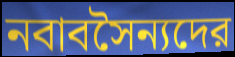
নবাবসৈন্যদের